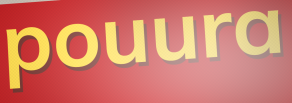
pouura